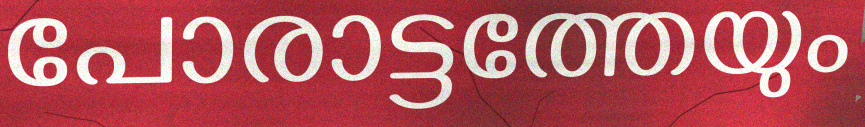
പോരാട്ടത്തേയും